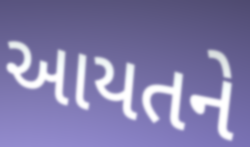
આયતને